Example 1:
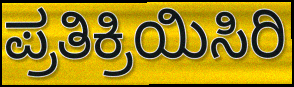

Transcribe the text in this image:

ಪ್ರತಿಕ್ರಿಯಿಸಿರಿ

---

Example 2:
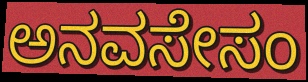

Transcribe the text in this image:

ಅನವಸೇಸಂ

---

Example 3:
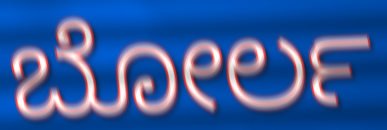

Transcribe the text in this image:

ಬೋರ್ಲ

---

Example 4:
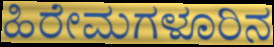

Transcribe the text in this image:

ಹಿರೇಮಗಳೂರಿನ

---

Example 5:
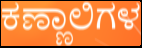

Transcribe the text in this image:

ಕಣ್ಣಾಲಿಗಳ